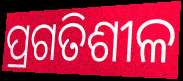
ପ୍ରଗତିଶୀଳ